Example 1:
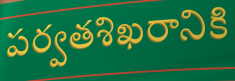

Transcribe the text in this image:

పర్వతశిఖరానికి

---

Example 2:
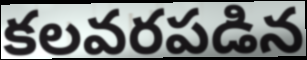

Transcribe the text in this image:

కలవరపడిన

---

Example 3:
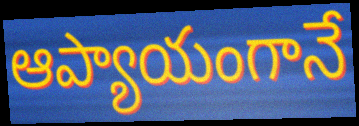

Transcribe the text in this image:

ఆప్యాయంగానే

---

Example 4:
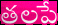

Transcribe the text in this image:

తలపే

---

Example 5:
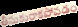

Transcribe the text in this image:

తీసుకురాకపోవడం